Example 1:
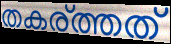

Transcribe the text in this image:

തകര്ത്തത്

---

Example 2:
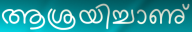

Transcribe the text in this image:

ആശ്രയിച്ചാണു്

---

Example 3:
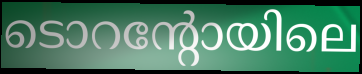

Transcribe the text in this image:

ടൊറന്റോയിലെ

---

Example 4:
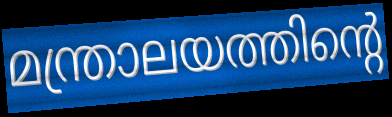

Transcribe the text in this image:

മന്ത്രാലയത്തിന്റെ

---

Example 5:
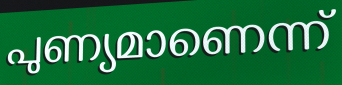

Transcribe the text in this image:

പുണ്യമാണെന്ന്